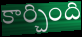
కార్చింది